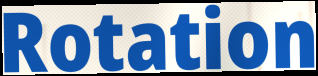
Rotation